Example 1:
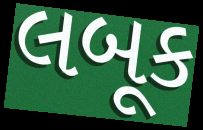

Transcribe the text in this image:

લબૂક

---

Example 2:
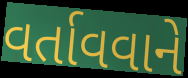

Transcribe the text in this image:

વર્તાવવાને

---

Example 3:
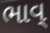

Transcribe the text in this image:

ભાવ્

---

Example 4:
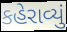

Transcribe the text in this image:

કહેરાવ્યું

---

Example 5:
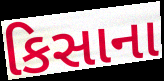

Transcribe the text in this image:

કિસાના